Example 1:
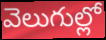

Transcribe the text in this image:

వెలుగుల్లో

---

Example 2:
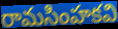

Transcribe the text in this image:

రామసింహకవి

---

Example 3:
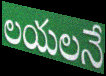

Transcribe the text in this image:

లయలనే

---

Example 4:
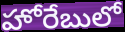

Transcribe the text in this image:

హోరేబులో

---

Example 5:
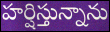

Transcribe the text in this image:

హర్షిస్తున్నాను